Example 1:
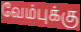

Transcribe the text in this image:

வேம்புக்கு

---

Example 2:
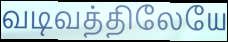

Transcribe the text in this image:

வடிவத்திலேயே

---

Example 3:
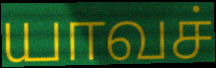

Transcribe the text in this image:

யாவச்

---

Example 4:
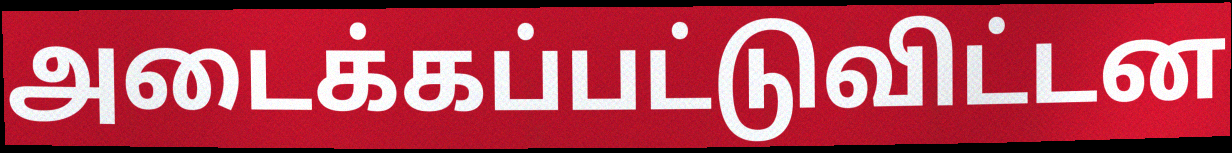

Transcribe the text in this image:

அடைக்கப்பட்டுவிட்டன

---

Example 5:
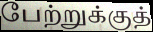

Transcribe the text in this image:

பேற்றுக்குத்